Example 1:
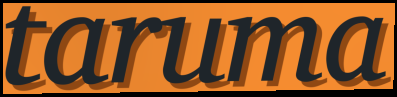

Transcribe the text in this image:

taruma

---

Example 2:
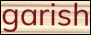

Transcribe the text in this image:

garish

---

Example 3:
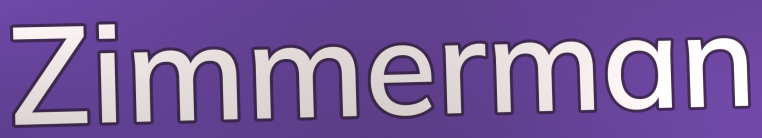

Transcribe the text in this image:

Zimmerman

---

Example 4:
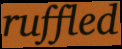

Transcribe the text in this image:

ruffled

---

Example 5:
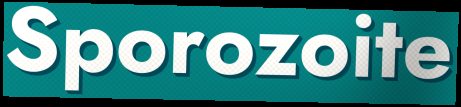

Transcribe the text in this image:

Sporozoite